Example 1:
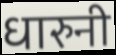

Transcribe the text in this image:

धारुनी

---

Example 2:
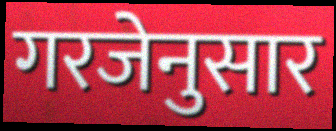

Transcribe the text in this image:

गरजेनुसार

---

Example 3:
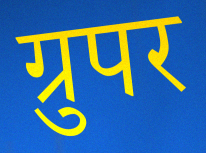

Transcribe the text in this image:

ग्रुपर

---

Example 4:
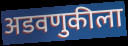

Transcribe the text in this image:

अडवणुकीला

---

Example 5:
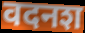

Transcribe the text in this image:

वदनश